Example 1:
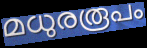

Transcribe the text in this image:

മധുരരൂപം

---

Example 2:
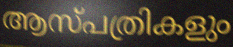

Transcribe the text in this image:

ആസ്പത്രികളും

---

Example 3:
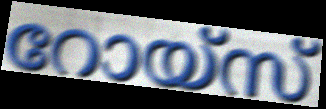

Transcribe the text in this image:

റോയ്സ്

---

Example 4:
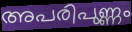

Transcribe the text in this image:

അപരിപുണ്ണം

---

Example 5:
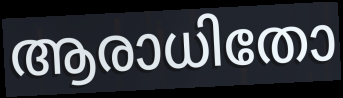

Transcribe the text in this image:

ആരാധിതോ